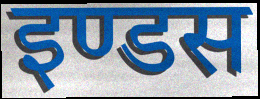
इण्डस